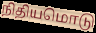
நிதியமொடு